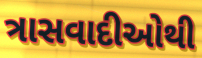
ત્રાસવાદીઓથી